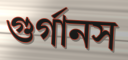
গুর্গানস